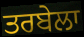
ਤਰਬੇਲਾ